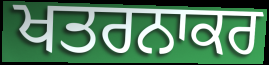
ਖਤਰਨਾਕਰ